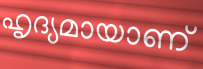
ഹൃദ്യമായാണ്